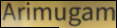
Arimugam